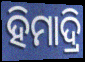
ହିମାଦ୍ରି